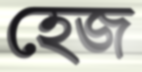
হেজ